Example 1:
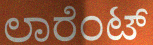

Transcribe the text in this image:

ಲಾರೆಂಟ್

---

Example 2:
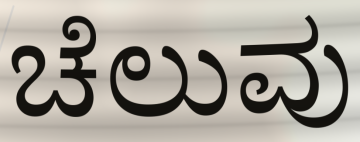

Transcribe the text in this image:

ಚೆಲುವು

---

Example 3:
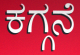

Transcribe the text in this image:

ಕಗ್ಗನೆ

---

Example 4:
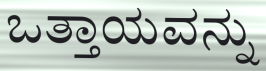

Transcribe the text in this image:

ಒತ್ತಾಯವನ್ನು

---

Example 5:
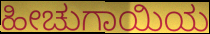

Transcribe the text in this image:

ಹೀಚುಗಾಯಿಯ